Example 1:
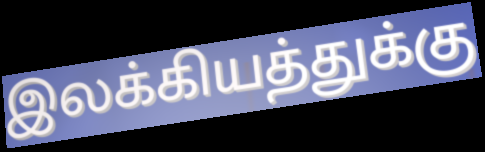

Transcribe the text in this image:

இலக்கியத்துக்கு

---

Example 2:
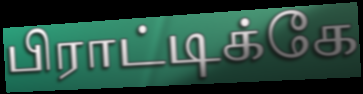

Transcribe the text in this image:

பிராட்டிக்கே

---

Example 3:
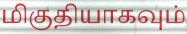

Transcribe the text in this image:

மிகுதியாகவும்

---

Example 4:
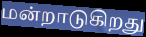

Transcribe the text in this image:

மன்றாடுகிறது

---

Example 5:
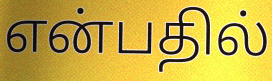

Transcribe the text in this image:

என்பதில்